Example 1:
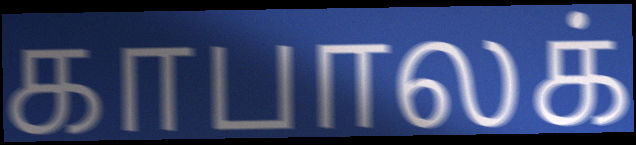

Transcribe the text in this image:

காபாலக்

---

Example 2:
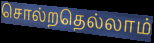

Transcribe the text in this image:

சொல்றதெல்லாம்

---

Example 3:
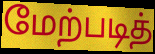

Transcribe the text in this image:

மேற்படித்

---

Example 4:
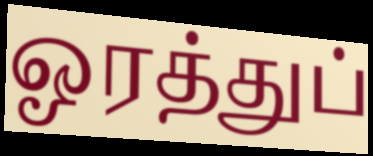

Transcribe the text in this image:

ஓரத்துப்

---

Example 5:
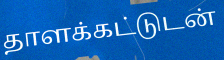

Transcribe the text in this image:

தாளக்கட்டுடன்